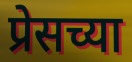
प्रेसच्या